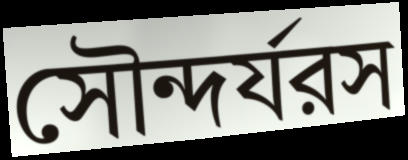
সৌন্দর্যরস